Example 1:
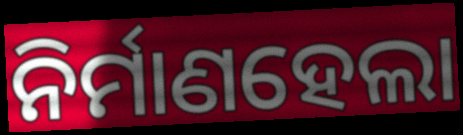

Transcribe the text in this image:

ନିର୍ମାଣହେଲା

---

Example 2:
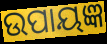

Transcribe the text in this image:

ଉପାୟଜ୍ଞ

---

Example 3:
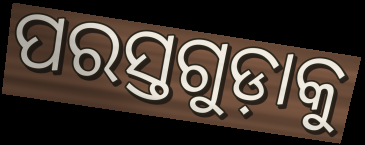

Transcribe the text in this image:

ପରସ୍ତଗୁଡ଼ାକୁ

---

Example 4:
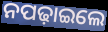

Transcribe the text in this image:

ନପଢ଼ାଇଲେ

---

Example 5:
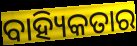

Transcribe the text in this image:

ବାହ୍ୟିକତାର